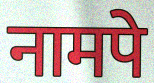
नामपे